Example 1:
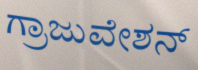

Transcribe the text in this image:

ಗ್ರಾಜುವೇಶನ್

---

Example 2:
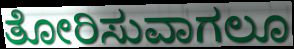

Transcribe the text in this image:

ತೋರಿಸುವಾಗಲೂ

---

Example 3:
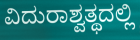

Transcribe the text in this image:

ವಿದುರಾಶ್ವತ್ಥದಲ್ಲಿ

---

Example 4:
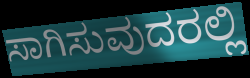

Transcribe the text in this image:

ಸಾಗಿಸುವುದರಲ್ಲಿ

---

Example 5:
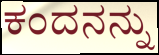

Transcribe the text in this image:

ಕಂದನನ್ನು